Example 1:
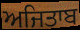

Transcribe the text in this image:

ਅਜਿਤਾਬ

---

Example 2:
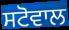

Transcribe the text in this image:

ਸਟੋਵਾਲ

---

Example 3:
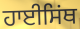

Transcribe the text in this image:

ਹਾਈਸਿਂਥ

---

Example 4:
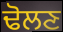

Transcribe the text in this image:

ਢੋਲਣ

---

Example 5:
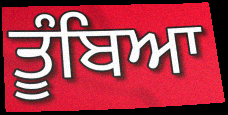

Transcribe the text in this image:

ਤੂੰਬਿਆ